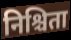
निश्चिता